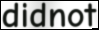
didnot